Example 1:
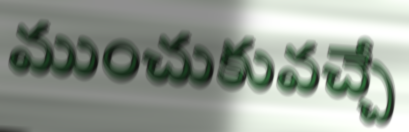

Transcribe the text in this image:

ముంచుకువచ్చే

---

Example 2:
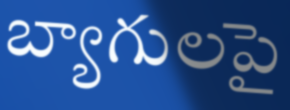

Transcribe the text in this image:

బ్యాగులపై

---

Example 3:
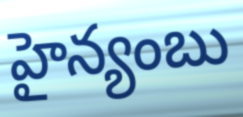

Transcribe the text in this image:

హైన్యంబు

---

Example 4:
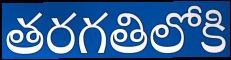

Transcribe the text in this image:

తరగతిలోకి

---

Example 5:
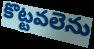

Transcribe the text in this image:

కొట్టవలెను